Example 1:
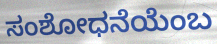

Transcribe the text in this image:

ಸಂಶೋಧನೆಯೆಂಬ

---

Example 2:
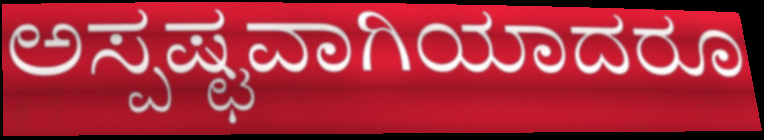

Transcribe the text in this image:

ಅಸ್ಪಷ್ಟವಾಗಿಯಾದರೂ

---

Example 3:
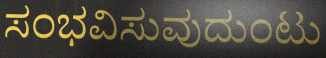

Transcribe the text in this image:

ಸಂಭವಿಸುವುದುಂಟು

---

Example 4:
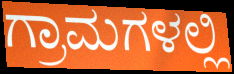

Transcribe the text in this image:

ಗ್ರಾಮಗಳಲ್ಲಿ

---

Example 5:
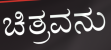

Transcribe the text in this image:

ಚಿತ್ರವನು